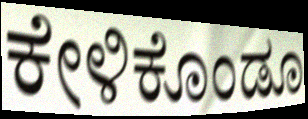
ಕೇಳಿಕೊಂಡೂ